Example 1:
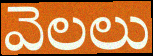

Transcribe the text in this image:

వెలలు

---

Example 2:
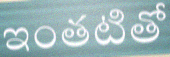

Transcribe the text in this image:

ఇంతటితో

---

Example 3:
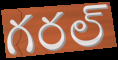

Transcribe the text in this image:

గరల్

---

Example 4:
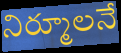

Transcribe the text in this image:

నిర్మూలనే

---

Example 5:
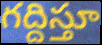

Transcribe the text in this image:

గద్దిస్తూ